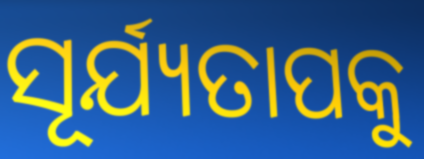
ସୂର୍ଯ୍ୟତାପକୁ